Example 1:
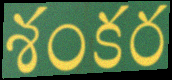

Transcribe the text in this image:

శంకర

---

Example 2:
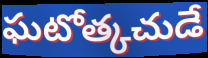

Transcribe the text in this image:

ఘటోత్కచుడే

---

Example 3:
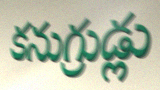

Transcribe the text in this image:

కనుగ్రుడ్లు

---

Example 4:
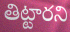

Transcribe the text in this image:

తిట్టారని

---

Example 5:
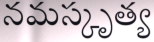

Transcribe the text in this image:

నమస్కృత్య